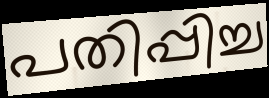
പതിപ്പിച്ച